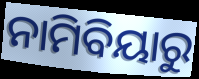
ନାମିବିୟାରୁ